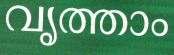
വൃത്താം